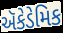
ઍકેડેમિક